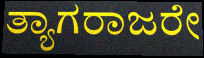
ತ್ಯಾಗರಾಜರೇ